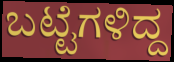
ಬಟ್ಟೆಗಳಿದ್ದ